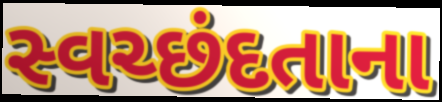
સ્વચ્છંદતાના